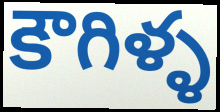
కౌగిళ్ళ